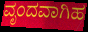
ವೃಂದವಾಗಿಹ